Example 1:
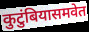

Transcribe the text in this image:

कुटुंबियासमवेत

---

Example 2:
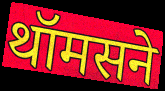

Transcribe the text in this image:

थॉमसने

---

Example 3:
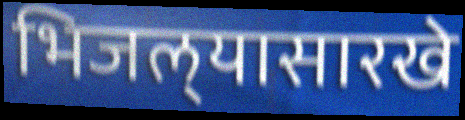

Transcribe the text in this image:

भिजल्यासारखे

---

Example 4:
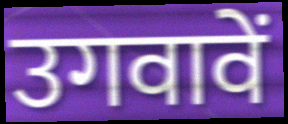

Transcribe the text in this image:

उगवावें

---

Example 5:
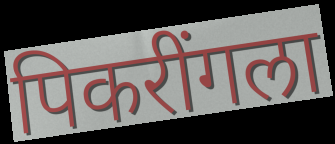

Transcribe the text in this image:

पिकरींगला